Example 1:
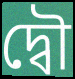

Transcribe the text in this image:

দ্বৌ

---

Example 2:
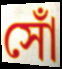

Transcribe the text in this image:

সোঁ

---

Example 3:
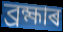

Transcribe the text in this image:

ব্ৰহ্মাৰ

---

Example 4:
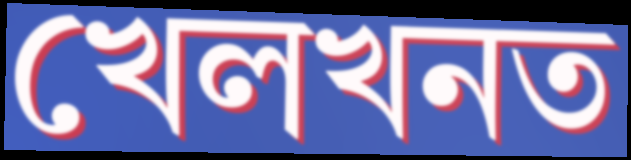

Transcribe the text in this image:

খেলখনত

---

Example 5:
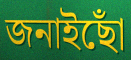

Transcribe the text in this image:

জনাইছোঁ